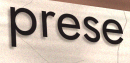
prese